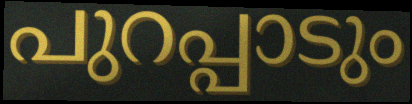
പുറപ്പാടും